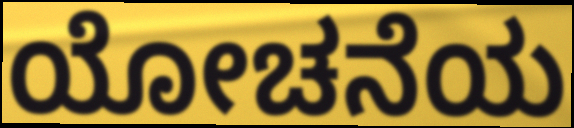
ಯೋಚನೆಯ